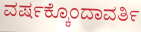
ವರ್ಷಕ್ಕೊಂದಾವರ್ತಿ